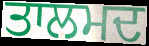
ਤਾਲਮਦ